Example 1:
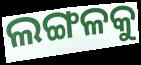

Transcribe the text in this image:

ଲଙ୍ଗଳକୁ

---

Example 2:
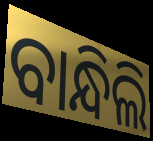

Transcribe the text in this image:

ବାନ୍ଧିଲି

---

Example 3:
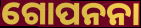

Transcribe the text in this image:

ଗୋପନନା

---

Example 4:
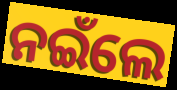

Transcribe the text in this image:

ନଇଁଲେ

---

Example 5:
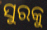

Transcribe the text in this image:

ସୁରକୁ